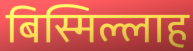
बिस्मिल्लाह